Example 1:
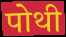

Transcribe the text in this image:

पोथी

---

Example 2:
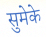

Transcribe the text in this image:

सुमेके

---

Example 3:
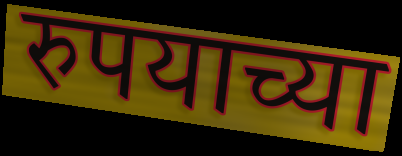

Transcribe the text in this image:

रुपयाच्या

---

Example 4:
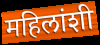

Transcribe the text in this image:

महिलांशी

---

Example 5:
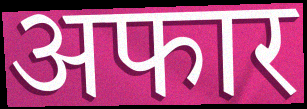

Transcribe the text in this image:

अफार